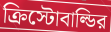
ক্রিস্টোবাল্ডির